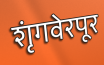
शृंगवेरपूर